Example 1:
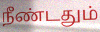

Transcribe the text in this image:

நீண்டதும்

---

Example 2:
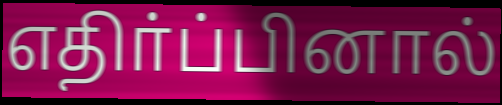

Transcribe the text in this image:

எதிர்ப்பினால்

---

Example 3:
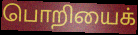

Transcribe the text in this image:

பொறியைக்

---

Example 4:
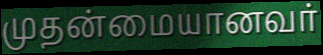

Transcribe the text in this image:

முதன்மையானவர்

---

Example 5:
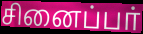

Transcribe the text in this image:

சினைப்பர்